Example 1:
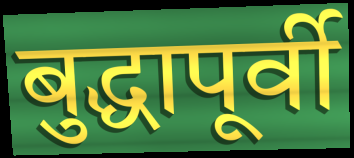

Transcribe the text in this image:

बुद्धापूर्वी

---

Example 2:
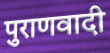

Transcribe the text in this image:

पुराणवादी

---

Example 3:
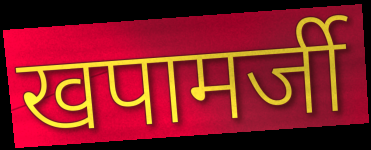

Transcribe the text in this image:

खपामर्जी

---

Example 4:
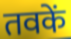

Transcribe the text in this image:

तवकें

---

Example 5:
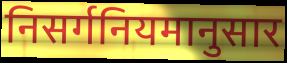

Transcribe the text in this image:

निसर्गनियमानुसार